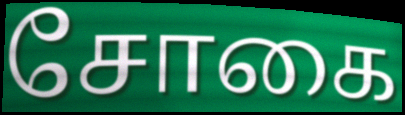
சோகை